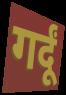
गर्दूं